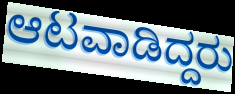
ಆಟವಾಡಿದ್ದರು